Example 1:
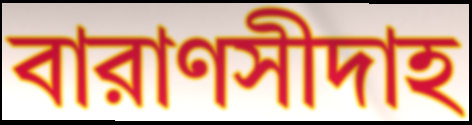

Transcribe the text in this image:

বারাণসীদাহ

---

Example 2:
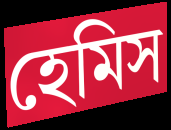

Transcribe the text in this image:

হেমিস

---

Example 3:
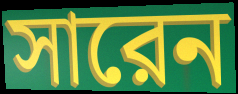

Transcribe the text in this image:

সারেন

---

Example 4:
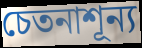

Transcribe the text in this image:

চেতনাশূন্য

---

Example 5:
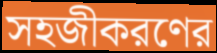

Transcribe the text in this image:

সহজীকরণের